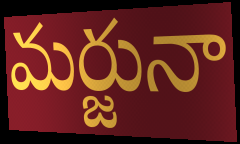
మర్జునా